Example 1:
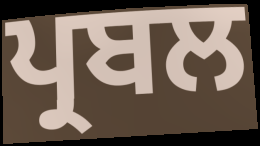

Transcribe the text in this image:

ਪ੍ਰਬਲ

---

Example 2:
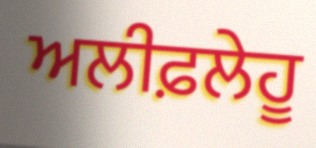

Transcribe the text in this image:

ਅਲੀਫ਼ਲੇਹੂ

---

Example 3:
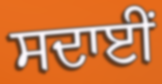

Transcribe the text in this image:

ਸਦਾਈਂ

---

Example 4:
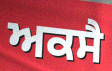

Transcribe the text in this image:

ਅਕਸੈ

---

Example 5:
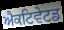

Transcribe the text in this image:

ਐਕਟਿਵੇਟਡ